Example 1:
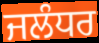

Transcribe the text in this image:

ਜਲੰਧਰ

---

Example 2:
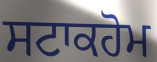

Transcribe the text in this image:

ਸਟਾਕਹੋਮ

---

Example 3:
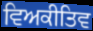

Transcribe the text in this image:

ਵਿਅਕੀਤਿਵ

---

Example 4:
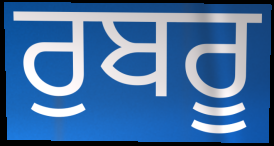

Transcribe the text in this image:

ਰੁਬਰੂ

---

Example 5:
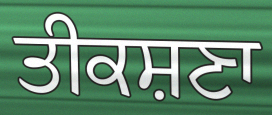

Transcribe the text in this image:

ਤੀਕਸ਼ਣਾ